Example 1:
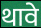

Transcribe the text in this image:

थावे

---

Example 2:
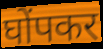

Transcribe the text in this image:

घोंपकर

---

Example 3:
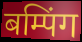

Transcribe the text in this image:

बम्पिंग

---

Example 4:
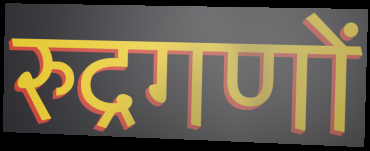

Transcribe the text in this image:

रुद्रगणों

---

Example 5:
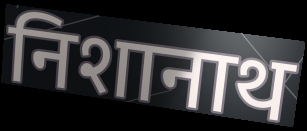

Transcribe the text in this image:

निशानाथ